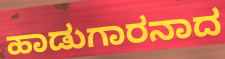
ಹಾಡುಗಾರನಾದ